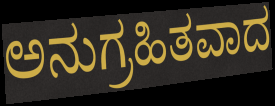
ಅನುಗ್ರಹಿತವಾದ